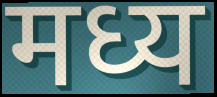
मध्य